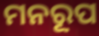
ମନରୂପ